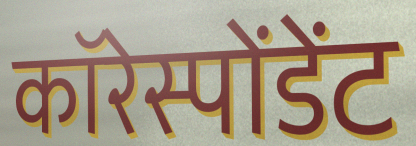
कॉरेस्पोंडेंट